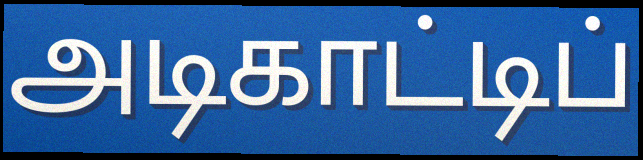
அடிகாட்டிப்